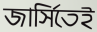
জার্সিতেই